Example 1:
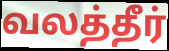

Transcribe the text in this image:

வலத்தீர்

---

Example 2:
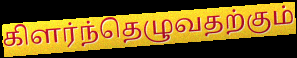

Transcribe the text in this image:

கிளர்ந்தெழுவதற்கும்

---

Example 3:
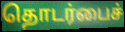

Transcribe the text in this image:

தொடர்பைச்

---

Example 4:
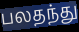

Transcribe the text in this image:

பலதந்து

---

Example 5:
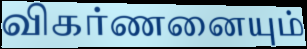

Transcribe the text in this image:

விகர்ணனையும்